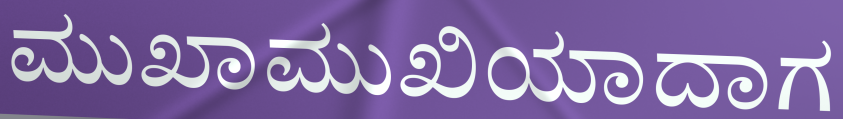
ಮುಖಾಮುಖಿಯಾದಾಗ